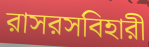
রাসরসবিহারী